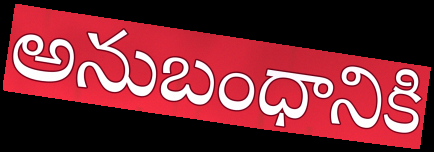
అనుబంధానికి